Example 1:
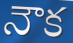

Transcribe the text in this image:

నౌక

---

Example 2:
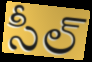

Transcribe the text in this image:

సీల్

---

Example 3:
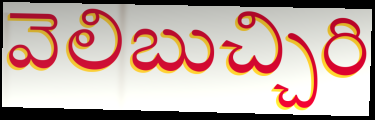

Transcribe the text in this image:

వెలిబుచ్చిరి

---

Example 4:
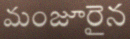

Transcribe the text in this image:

మంజూరైన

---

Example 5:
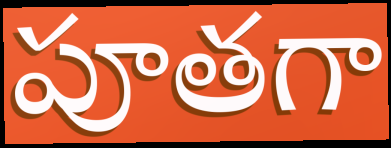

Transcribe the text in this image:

పూతగా